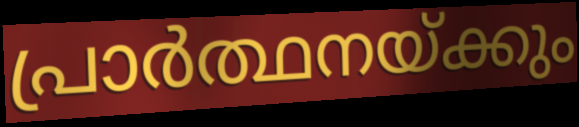
പ്രാർത്ഥനയ്ക്കും